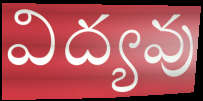
విద్యవు